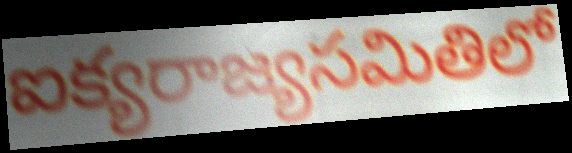
ఐక్యరాజ్యసమితిలో